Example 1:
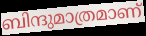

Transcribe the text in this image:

ബിന്ദുമാത്രമാണ്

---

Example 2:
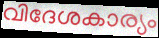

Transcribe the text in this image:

വിദേശകാര്യം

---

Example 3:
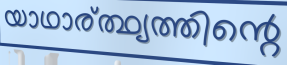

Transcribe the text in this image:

യാഥാര്ത്ഥ്യത്തിന്റെ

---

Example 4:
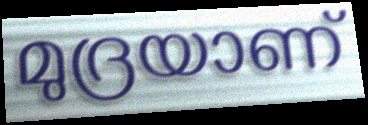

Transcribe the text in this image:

മുദ്രയാണ്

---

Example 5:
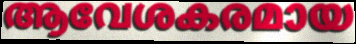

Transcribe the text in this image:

ആവേശകരമായ